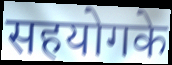
सहयोगके